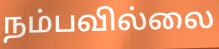
நம்பவில்லை